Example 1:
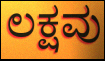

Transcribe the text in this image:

ಲಕ್ಷವು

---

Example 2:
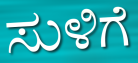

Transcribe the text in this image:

ಸುಳಿಗೆ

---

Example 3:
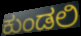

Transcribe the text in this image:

ಕುಂಡಲಿ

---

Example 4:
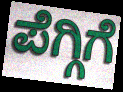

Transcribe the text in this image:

ಪೆಗ್ಗಿಗೆ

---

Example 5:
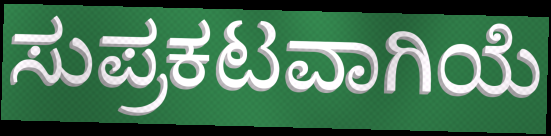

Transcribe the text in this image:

ಸುಪ್ರಕಟವಾಗಿಯೆ